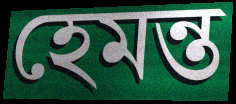
হেমন্ত